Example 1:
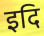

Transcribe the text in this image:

इदि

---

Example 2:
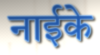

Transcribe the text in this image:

नाईके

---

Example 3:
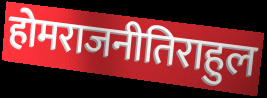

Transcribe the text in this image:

होमराजनीतिराहुल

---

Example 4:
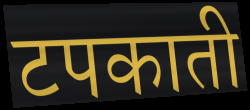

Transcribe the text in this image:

टपकाती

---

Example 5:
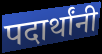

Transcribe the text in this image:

पदार्थांनी